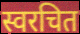
स्वरचित